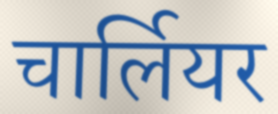
चार्लियर